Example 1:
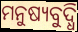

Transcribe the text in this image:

ମନୁଷ୍ୟବୁଦ୍ଧି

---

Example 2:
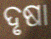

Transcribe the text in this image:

ଦୃଷା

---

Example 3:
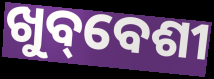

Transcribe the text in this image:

ଖୁବ୍‌ବେଶୀ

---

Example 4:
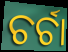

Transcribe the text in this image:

ଚର୍ଚା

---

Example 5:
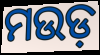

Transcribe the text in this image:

ମଉଡ଼